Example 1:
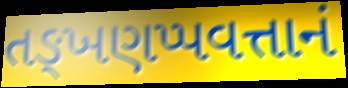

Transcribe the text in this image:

તઙ્ખણપ્પવત્તાનં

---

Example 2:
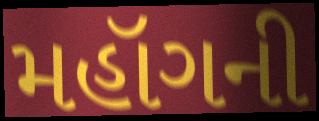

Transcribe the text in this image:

મહૉગની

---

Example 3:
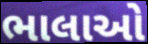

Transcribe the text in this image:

ભાલાઓ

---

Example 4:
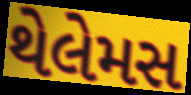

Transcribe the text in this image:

થેલેમસ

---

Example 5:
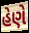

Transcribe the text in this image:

હેણે